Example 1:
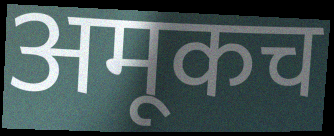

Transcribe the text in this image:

अमूकच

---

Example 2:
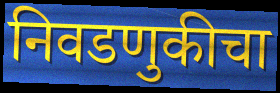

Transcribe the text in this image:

निवडणुकीचा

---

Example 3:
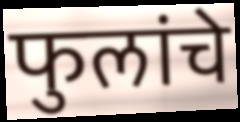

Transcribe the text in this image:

फुलांचे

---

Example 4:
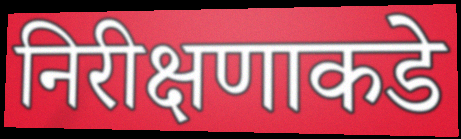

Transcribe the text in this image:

निरीक्षणाकडे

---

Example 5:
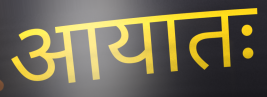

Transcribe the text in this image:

आयातः